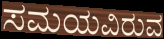
ಸಮಯವಿರುವ